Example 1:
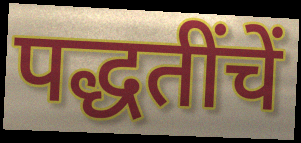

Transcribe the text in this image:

पद्धतींचें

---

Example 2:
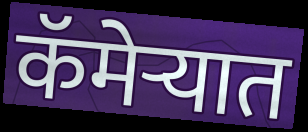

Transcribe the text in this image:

कॅमेर्‍यात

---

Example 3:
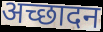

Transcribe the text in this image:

अच्छादन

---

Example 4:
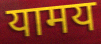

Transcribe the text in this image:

यामय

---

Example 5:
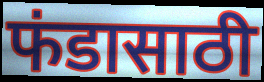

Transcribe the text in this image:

फंडासाठी